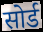
सोर्ड